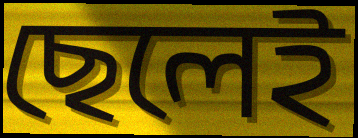
ছেলেই